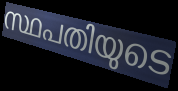
സ്ഥപതിയുടെ